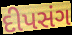
દીપસંગ